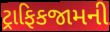
ટ્રાફિકજામની